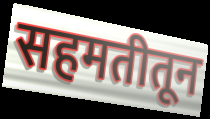
सहमतीतून